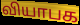
வியாபக